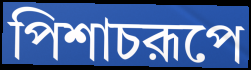
পিশাচরূপে